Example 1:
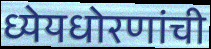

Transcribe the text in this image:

ध्येयधोरणांची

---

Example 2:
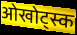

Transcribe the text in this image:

ओखोट्स्क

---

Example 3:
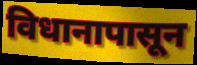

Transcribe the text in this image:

विधानापासून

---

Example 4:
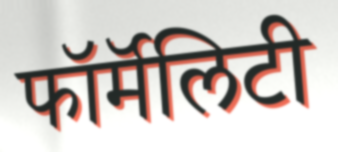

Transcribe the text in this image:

फॉर्मॅलिटी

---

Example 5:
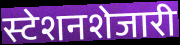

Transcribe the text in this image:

स्टेशनशेजारी